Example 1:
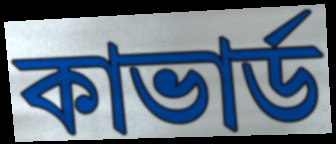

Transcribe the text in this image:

কাভার্ড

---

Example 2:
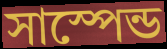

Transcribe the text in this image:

সাস্পেন্ড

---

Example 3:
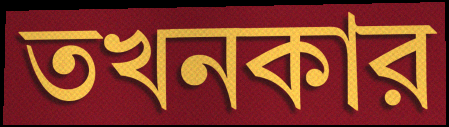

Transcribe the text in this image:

তখনকার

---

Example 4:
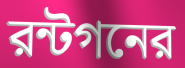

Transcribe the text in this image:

রন্টগনের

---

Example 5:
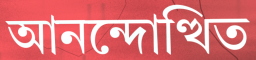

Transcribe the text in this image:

আনন্দোত্থিত